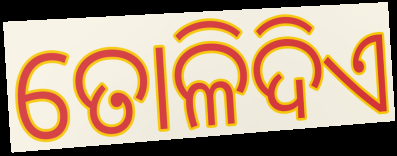
ତୋଳିଦିଏ